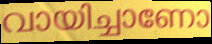
വായിച്ചാണോ